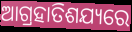
ଆଗ୍ରହାତିଶଯ୍ୟରେ